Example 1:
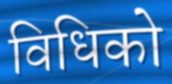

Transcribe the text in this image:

विधिको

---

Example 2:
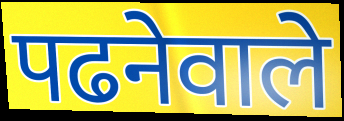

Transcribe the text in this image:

पढनेवाले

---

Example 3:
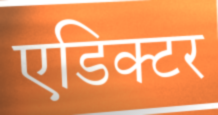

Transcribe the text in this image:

एडिक्टर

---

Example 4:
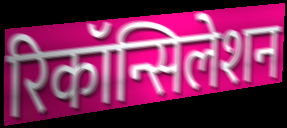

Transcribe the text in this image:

रिकॉन्सिलेशन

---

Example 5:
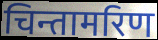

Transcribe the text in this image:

चिन्तामरिण